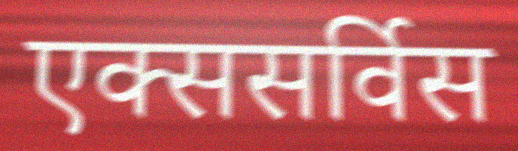
एक्ससर्विस